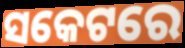
ସକେଟରେ